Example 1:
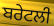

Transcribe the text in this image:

ਬਰੇਟਲੀ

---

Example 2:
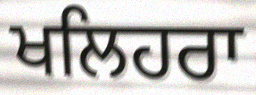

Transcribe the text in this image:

ਖਲਿਹਰਾ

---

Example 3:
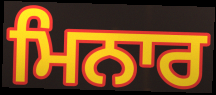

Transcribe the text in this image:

ਮਿਨਾਰ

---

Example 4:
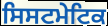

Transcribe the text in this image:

ਸਿਸਟਮੇਟਿਕ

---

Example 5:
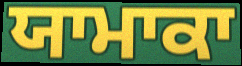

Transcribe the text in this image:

ਯਾਮਾਕਾ